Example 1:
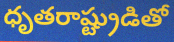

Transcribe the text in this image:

ధృతరాష్ట్రుడితో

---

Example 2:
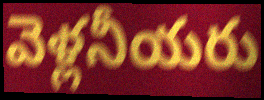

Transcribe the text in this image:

వెళ్లనీయరు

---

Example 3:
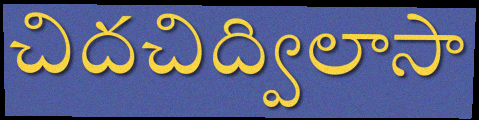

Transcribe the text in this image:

చిదచిద్విలాసా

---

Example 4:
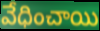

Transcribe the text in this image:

వేధించాయి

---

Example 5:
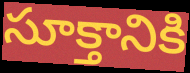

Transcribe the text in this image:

సూక్తానికి